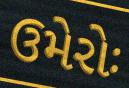
ઉમેરોઃ